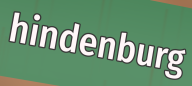
hindenburg